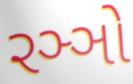
રઞ્ઞો